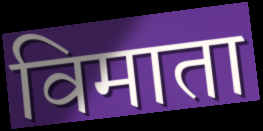
विमाता